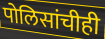
पोलिसांचीही